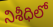
నిశీధిలో